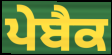
ਪੇਬੈਕ